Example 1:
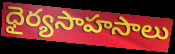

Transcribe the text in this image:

ధైర్యసాహసాలు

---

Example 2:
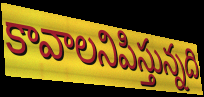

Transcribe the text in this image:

కావాలనిపిస్తున్నది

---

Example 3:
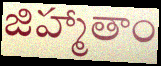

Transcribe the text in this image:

జిహ్మాతాం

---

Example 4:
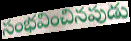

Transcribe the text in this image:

సంభవించినపుడు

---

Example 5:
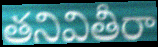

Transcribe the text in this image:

తనివితీరా